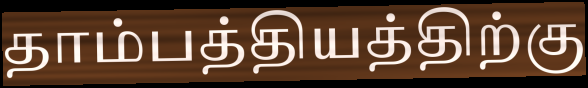
தாம்பத்தியத்திற்கு